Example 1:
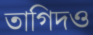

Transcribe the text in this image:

তাগিদও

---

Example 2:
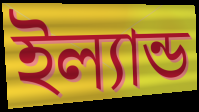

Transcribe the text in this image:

ইল্যান্ড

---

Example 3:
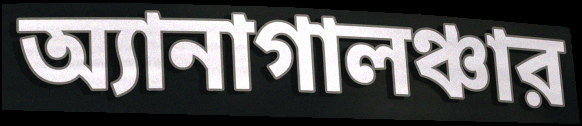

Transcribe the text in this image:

অ্যানাগালঞ্চার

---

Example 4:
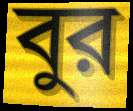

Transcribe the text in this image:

বুর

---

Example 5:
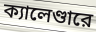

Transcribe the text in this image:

ক্যালেণ্ডারে